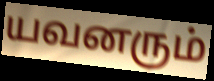
யவனரும்